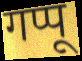
गप्पू